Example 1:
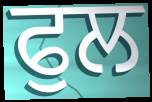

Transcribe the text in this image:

ਫੁਲ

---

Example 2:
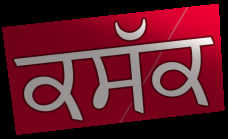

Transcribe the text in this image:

ਕਸੱਕ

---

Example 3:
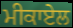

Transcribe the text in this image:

ਮੀਕਾਏਲ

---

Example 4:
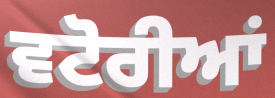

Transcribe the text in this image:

ਵਟੋਰੀਆਂ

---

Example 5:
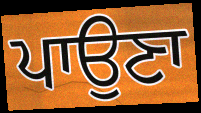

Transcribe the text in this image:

ਪਾਉਣਾ